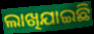
ଲାଖିଯାଇଛି